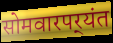
सोमवारपर्यंत